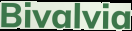
Bivalvia